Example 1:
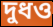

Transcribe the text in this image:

দুধও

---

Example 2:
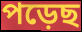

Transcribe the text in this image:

পড়েছ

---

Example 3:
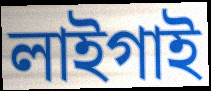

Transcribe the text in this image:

লাইগাই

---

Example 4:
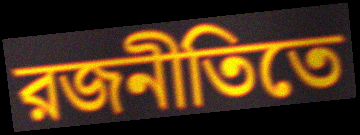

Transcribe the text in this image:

রজনীতিতে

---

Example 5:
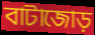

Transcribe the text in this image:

বাটাজোড়